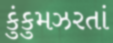
કુંકુમઝરતાં